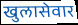
खुलासेवार